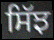
ਸਿੱਝ